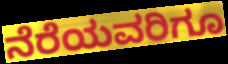
ನೆರೆಯವರಿಗೂ